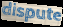
dispute